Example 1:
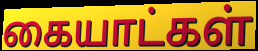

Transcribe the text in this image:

கையாட்கள்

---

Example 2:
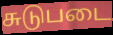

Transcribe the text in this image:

சுடுபடை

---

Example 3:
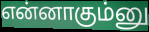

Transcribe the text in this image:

என்னாகும்னு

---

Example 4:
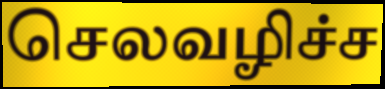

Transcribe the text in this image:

செலவழிச்ச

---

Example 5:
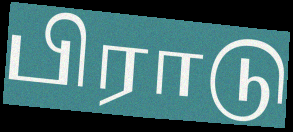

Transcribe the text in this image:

பிராடு